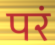
परं